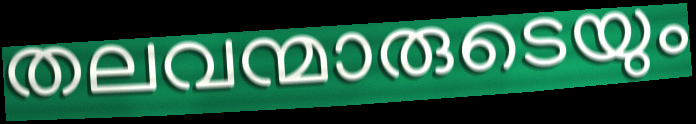
തലവന്മാരുടെയും